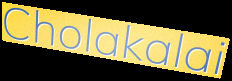
Cholakalai